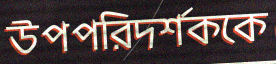
উপপরিদর্শককে